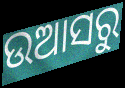
ଉଆସରୁ